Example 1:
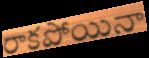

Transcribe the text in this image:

రాకపోయినా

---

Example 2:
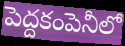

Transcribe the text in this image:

పెద్దకంపెనీలో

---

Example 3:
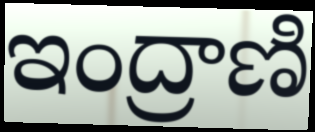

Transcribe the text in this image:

ఇంద్రాణి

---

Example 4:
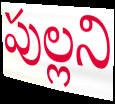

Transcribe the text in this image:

పుల్లని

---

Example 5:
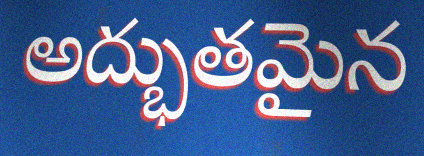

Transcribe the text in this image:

అద్భుతమైన